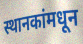
स्थानकांमधून